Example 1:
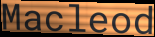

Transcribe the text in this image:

Macleod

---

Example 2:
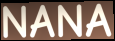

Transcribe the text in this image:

NANA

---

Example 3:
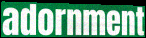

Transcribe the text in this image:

adornment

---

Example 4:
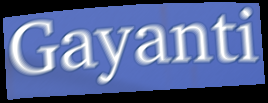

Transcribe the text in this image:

Gayanti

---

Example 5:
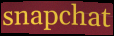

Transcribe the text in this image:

snapchat